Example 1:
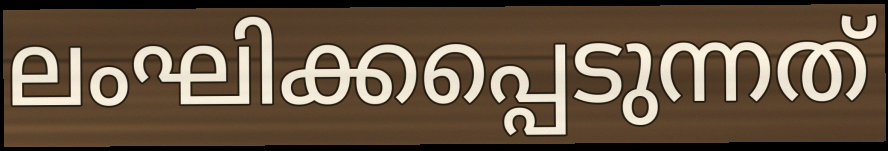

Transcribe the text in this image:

ലംഘിക്കപ്പെടുന്നത്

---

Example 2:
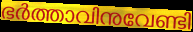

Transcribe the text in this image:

ഭർത്താവിനുവേണ്ടി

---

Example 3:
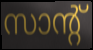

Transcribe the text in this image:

സാന്റ്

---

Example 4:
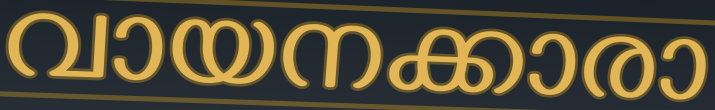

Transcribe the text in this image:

വായനക്കാരാ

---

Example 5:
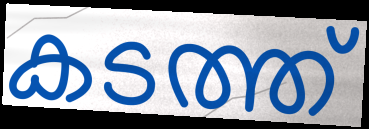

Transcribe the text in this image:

കടത്ത്